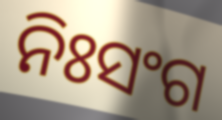
ନିଃସଂଗ